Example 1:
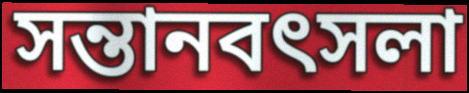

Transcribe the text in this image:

সন্তানবৎসলা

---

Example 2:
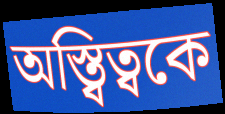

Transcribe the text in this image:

অস্ত্বিত্বকে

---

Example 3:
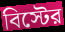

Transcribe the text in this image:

বিস্টের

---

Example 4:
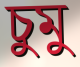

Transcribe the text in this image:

চুমু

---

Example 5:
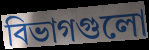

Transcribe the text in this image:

বিভাগগুলো